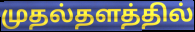
முதல்தளத்தில்